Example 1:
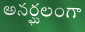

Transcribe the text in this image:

అనర్ఘలంగా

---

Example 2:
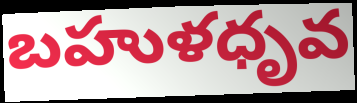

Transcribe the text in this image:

బహుళధృవ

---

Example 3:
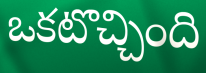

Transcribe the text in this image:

ఒకటొచ్చింది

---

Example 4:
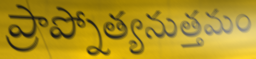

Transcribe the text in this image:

ప్రాప్నోత్యనుత్తమం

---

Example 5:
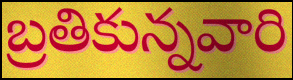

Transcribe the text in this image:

బ్రతికున్నవారి